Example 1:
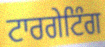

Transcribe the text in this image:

ਟਾਰਗੇਟਿੰਗ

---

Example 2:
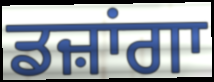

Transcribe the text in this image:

ਡਜ਼ਾਂਗਾ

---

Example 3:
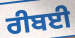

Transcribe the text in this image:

ਰੀਬਈ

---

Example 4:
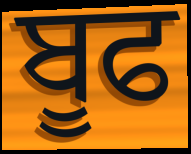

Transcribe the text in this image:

ਬੂਫ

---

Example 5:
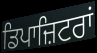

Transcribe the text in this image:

ਡਿਪਾਜ਼ਿਟਰਾਂ